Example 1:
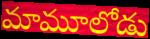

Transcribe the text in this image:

మామూలోడు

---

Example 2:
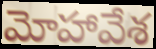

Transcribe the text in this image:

మోహావేశ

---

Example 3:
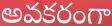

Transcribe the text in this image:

అవకరంగా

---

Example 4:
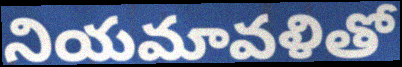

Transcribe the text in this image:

నియమావళితో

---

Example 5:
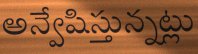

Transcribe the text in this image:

అన్వేషిస్తున్నట్లు